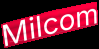
Milcom